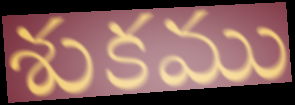
శుకము